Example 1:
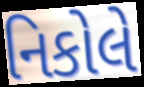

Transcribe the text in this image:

નિકોલે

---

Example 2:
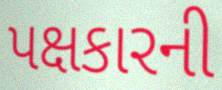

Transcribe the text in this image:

પક્ષકારની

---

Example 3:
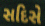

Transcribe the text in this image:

સદિસે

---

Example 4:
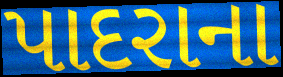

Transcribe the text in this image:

પાદરાના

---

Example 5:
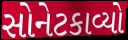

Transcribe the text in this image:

સોનેટકાવ્યો